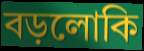
বড়লোকি